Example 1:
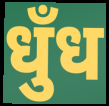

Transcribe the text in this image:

धुँध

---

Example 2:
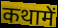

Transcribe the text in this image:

कथामें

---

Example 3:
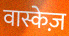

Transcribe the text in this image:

वास्केज़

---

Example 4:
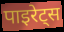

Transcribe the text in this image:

पाइरेट्स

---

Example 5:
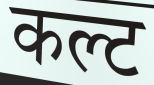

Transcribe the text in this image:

कल्ट